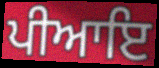
ਪੀਆਇ